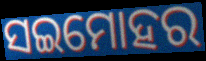
ସଇମୋହର